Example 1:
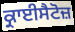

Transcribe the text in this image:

ਕ੍ਰਾਈਸੈਟੋਜ਼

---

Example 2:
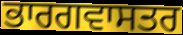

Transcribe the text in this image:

ਭਾਰਗਵਾਸਤਰ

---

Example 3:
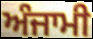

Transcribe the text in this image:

ਅੰਜਾਮੀ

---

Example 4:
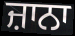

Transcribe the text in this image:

ਜ਼ਾਨਾ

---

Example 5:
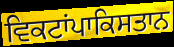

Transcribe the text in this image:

ਵਿਕਟਾਂਪਾਕਿਸਤਾਨ